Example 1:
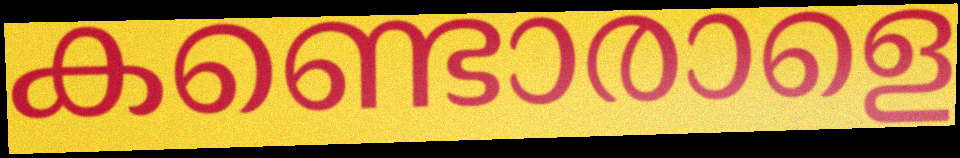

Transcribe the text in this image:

കണ്ടൊരാളെ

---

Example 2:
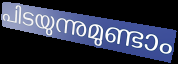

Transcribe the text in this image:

പിടയുന്നുമുണ്ടാം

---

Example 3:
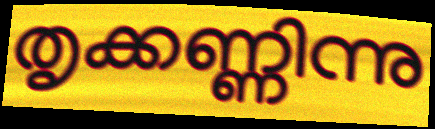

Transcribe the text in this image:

തൃക്കണ്ണിന്നു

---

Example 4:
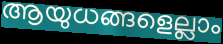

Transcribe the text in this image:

ആയുധങ്ങളെല്ലാം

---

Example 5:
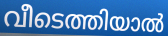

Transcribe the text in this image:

വീടെത്തിയാൽ